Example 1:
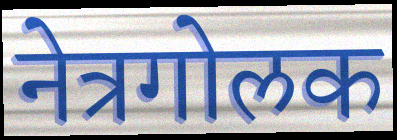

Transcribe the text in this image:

नेत्रगोलक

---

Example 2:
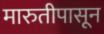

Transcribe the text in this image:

मारुतीपासून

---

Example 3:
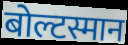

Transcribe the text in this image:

बोल्टस्मान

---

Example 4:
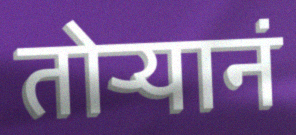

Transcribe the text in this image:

तोऱ्यानं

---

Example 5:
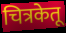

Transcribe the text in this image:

चित्रकेतू